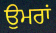
ਉਮਰਾਂ